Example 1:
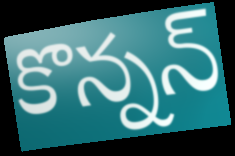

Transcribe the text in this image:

కొన్నన్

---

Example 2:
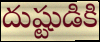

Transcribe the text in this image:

దుష్టుడికి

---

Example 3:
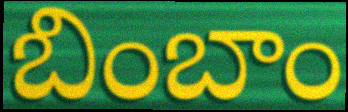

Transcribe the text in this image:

బింబాం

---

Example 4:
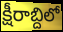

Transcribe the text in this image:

క్షీరాబ్దిలో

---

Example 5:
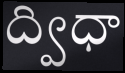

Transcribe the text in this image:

ద్విధా